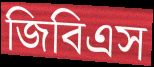
জিবিএস